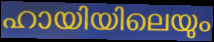
ഹായിയിലെയും